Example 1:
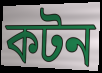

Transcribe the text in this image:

কটন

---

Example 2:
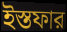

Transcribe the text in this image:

ইস্তফার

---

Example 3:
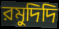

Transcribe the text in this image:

রমুদিদি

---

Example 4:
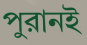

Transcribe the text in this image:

পুরানই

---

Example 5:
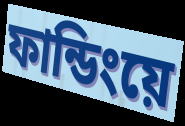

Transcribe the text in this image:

ফান্ডিংয়ে